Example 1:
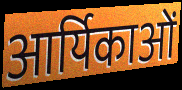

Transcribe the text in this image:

आर्यिकाओं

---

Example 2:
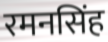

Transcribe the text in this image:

रमनसिंह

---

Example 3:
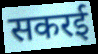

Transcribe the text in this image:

सकरई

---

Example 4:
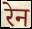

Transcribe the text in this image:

रेन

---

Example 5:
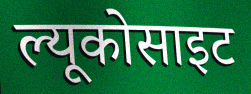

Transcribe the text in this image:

ल्यूकोसाइट